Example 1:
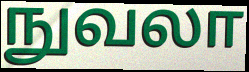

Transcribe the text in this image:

நுவலா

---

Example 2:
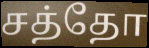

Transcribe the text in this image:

சத்தோ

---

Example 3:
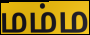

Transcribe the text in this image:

மம்ம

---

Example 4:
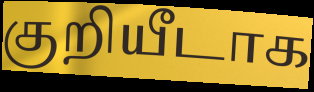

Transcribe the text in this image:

குறியீடாக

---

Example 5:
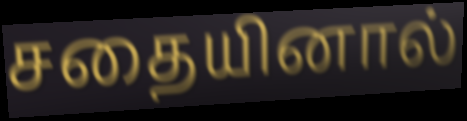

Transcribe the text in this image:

சதையினால்